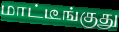
மாட்டீங்குது